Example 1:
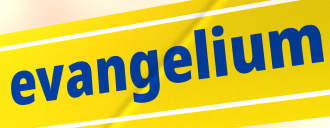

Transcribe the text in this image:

evangelium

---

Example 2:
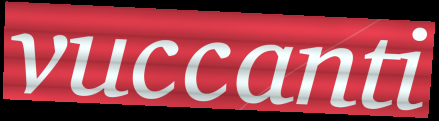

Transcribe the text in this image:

vuccanti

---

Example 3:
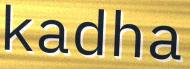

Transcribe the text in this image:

kadha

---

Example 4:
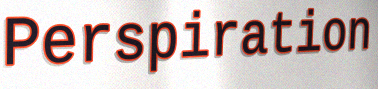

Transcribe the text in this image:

Perspiration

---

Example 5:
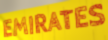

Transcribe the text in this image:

EMIRATES